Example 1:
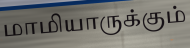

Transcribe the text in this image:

மாமியாருக்கும்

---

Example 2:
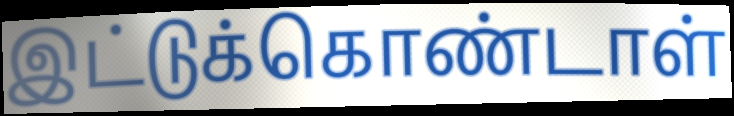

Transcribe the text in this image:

இட்டுக்கொண்டாள்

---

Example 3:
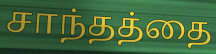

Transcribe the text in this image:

சாந்தத்தை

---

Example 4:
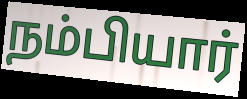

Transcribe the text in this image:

நம்பியார்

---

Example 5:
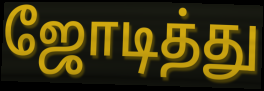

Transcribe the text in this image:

ஜோடித்து